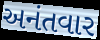
અનંતવાર